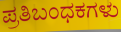
ಪ್ರತಿಬಂಧಕಗಳು